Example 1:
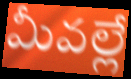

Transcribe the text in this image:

మీవల్లే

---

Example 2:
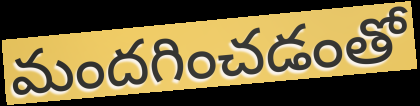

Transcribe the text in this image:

మందగించడంతో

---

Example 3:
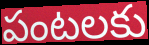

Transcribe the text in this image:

పంటలకు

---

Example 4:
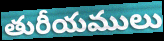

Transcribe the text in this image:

తురీయములు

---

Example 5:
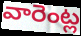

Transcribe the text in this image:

వారెంట్ల